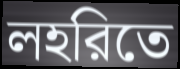
লহরিতে